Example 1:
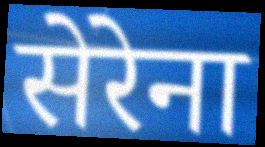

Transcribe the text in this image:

सेरेना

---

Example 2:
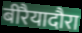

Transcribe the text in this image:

बीरैयादौरा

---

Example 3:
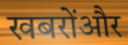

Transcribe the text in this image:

खबरोंऔर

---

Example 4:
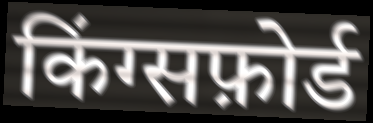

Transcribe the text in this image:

किंग्सफ़ोर्ड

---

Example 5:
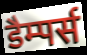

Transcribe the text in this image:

डैम्पर्स